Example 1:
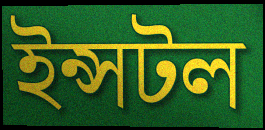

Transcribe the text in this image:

ইন্সটল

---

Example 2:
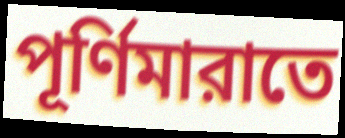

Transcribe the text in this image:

পূর্ণিমারাতে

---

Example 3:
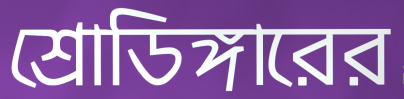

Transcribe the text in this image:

শ্রোডিঙ্গারের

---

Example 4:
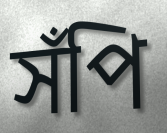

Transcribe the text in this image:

সঁপি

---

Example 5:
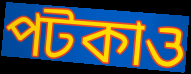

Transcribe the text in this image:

পটকাও